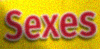
Sexes